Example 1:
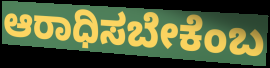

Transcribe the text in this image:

ಆರಾಧಿಸಬೇಕೆಂಬ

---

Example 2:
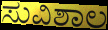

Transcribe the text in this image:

ಸುವಿಶಾಲ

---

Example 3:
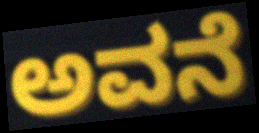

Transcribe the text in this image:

ಅವನೆ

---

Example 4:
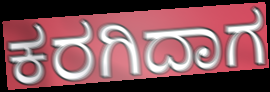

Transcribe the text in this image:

ಕರಗಿದಾಗ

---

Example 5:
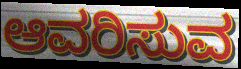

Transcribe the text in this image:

ಆವರಿಸುವ